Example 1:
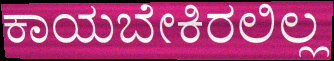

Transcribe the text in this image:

ಕಾಯಬೇಕಿರಲಿಲ್ಲ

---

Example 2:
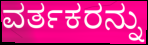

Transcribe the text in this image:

ವರ್ತಕರನ್ನು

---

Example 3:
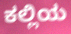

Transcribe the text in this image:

ಕಲ್ಲಿಯ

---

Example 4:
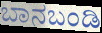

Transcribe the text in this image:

ಬಾನಬಂಡಿ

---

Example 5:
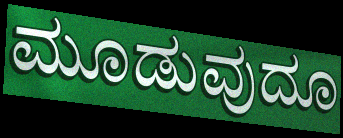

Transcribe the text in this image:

ಮೂಡುವುದೂ